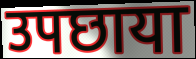
उपछाया